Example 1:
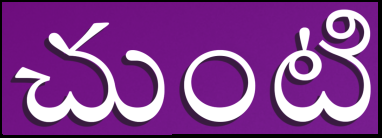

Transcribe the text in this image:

చుంటి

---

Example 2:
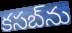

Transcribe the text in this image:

కసబ్‌ను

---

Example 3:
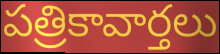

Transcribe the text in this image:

పత్రికావార్తలు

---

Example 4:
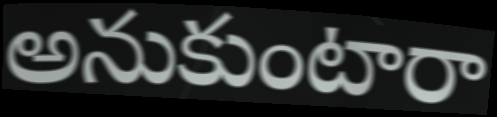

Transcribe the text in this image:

అనుకుంటారా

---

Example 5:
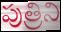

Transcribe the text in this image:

పుత్రిని